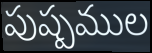
పుష్పముల